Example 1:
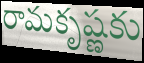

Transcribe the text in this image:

రామకృష్ణకు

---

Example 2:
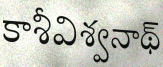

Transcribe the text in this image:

కాశీవిశ్వనాథ్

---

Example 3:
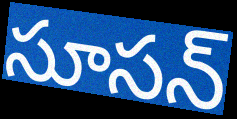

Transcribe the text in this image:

సూసన్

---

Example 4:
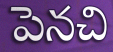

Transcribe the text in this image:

పెనచి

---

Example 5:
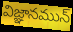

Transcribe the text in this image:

విజ్ఞానమున్